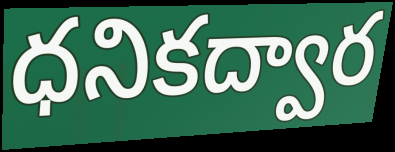
ధనికద్వార